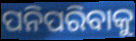
ପନିପରିବାକୁ